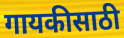
गायकीसाठी